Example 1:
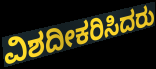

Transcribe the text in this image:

ವಿಶದೀಕರಿಸಿದರು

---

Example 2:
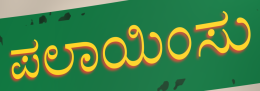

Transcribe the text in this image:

ಪಲಾಯಿಂಸು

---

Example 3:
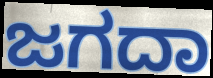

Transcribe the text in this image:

ಜಗದಾ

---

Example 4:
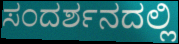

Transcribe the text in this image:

ಸಂದರ್ಶನದಲ್ಲಿ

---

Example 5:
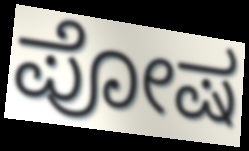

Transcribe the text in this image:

ಪೋಷ